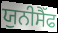
ਯੁਨੀਸੈੱਫ